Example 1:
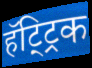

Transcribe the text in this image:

हॅट्ट्रिक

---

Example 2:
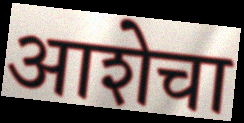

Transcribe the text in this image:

आशेचा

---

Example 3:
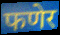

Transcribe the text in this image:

फणेर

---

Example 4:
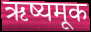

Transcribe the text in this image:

ऋष्यमूक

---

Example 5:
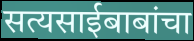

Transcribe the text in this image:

सत्यसाईबाबांचा